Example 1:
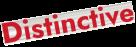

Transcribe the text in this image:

Distinctive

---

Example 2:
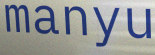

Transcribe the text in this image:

manyu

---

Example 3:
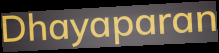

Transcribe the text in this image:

Dhayaparan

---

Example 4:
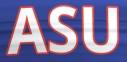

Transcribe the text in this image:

ASU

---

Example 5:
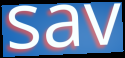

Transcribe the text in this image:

sav